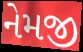
નેમજી